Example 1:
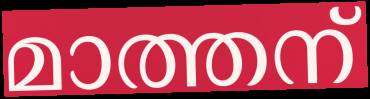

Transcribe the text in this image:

മാത്തന്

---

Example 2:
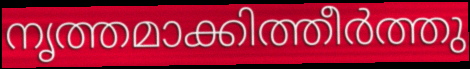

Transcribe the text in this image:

നൃത്തമാക്കിത്തീർത്തു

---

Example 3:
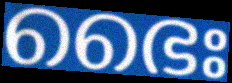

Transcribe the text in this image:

ഭൈഃ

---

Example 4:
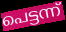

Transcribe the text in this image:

പെട്ടന്ന്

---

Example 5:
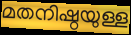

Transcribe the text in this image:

മതനിഷ്ഠയുള്ള